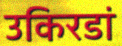
उकिरडां